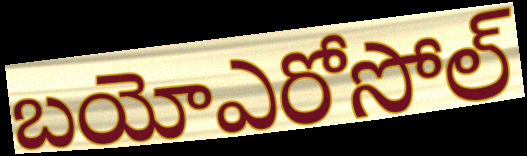
బయోఎరోసోల్